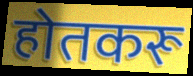
होतकरू